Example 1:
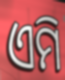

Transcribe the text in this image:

ଏମି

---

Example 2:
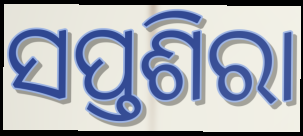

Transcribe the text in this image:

ସପ୍ତଶିରା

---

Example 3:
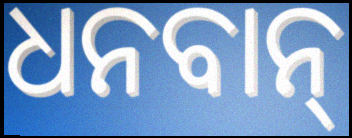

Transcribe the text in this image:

ଧନବାନ୍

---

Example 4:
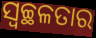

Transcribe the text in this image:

ସ୍ଵଚ୍ଛଳତାର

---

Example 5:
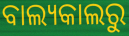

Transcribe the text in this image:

ବାଲ୍ୟକାଲରୁ